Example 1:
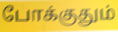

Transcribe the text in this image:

போக்குதும்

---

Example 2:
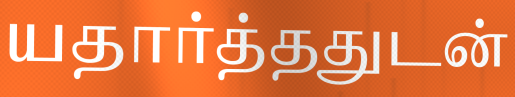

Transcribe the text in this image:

யதார்த்ததுடன்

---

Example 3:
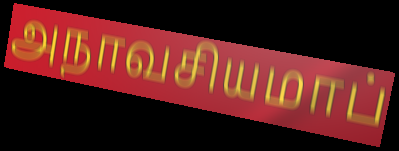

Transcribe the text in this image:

அநாவசியமாப்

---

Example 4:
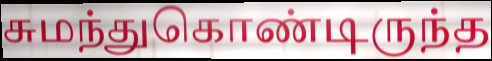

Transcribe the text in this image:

சுமந்துகொண்டிருந்த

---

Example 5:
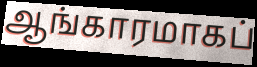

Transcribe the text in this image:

ஆங்காரமாகப்